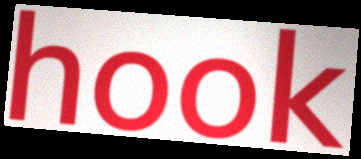
hook